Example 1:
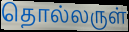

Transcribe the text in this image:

தொல்லருள்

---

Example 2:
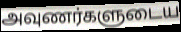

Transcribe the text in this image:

அவுணர்களுடைய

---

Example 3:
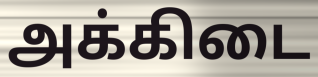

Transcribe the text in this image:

அக்கிடை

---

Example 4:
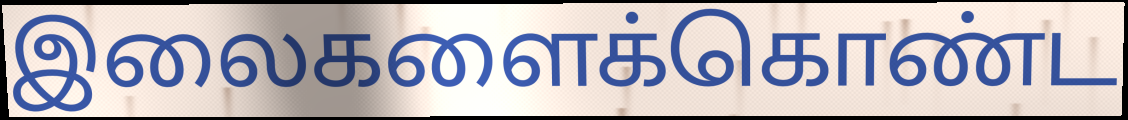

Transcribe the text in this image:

இலைகளைக்கொண்ட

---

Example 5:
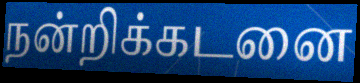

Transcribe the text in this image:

நன்றிக்கடனை